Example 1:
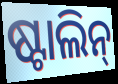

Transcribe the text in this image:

ଷ୍ଟାଲିନ୍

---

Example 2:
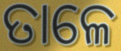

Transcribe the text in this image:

ତାଳେ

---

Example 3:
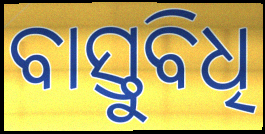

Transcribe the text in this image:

ବାସ୍ତୁବିଧି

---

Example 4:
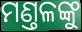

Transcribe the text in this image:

ମଣ୍ତଳଙ୍କୁ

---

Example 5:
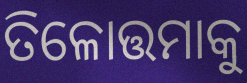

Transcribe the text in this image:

ତିଳୋତ୍ତମାକୁ